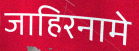
जाहिरनामे